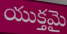
యుక్తమై